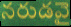
నరుడవై